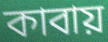
কাবায়